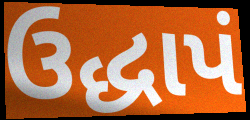
ઉદ્ધાપં